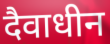
दैवाधीन